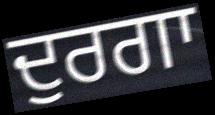
ਦੁਰਗਾ